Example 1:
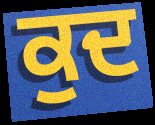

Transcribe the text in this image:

ਕੁਦ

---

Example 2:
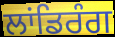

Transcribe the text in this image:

ਲਾਂਡਿਰੰਗ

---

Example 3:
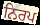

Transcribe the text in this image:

ਨਿਰਪ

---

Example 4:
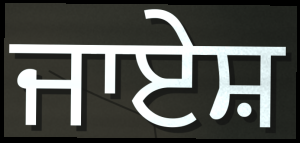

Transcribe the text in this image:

ਜਾਏਸ਼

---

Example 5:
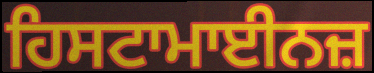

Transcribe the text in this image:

ਹਿਸਟਾਮਾਈਨਜ਼